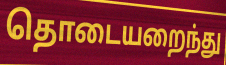
தொடையறைந்து